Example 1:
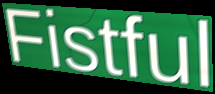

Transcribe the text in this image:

Fistful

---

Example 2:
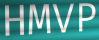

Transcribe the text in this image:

HMVP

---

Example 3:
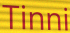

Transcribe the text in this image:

Tinni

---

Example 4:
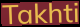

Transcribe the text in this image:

Takhti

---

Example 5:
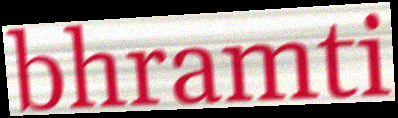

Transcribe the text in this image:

bhramti